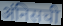
अंनिसची